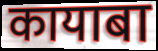
कायाबा